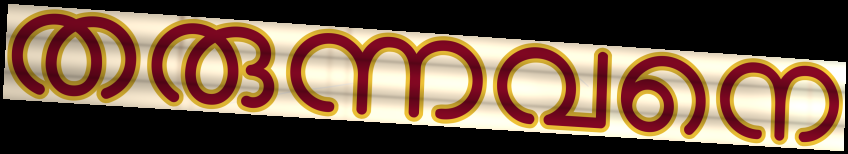
തരുന്നവനെ